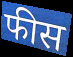
फीस